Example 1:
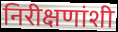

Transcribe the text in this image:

निरीक्षणांशी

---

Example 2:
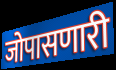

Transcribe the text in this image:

जोपासणारी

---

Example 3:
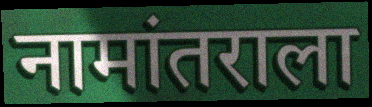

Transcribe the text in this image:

नामांतराला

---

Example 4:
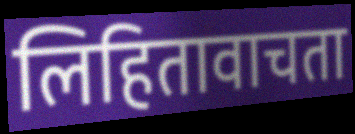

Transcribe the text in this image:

लिहितावाचता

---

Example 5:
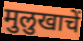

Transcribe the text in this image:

मुलुखाचें